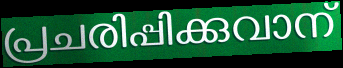
പ്രചരിപ്പിക്കുവാന്